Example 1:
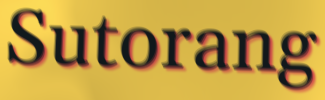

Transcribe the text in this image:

Sutorang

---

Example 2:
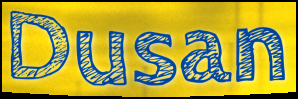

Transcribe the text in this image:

Dusan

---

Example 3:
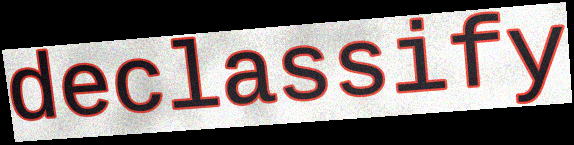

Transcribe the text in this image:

declassify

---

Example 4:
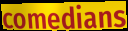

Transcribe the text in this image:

comedians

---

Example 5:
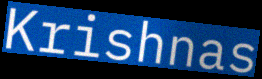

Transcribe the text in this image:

Krishnas